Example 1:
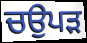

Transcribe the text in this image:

ਚਉਪੜ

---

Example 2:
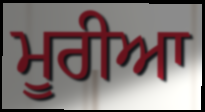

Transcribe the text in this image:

ਮੂਰੀਆ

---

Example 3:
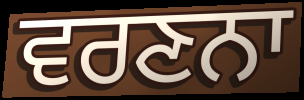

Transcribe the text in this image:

ਵਰਣਨਾ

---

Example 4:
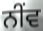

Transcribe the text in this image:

ਨੀਂਵ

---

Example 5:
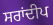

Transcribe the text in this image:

ਸਰਾਂਦੀਪ